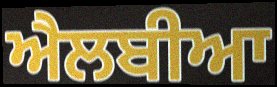
ਐਲਬੀਆ